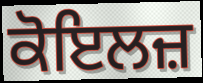
ਕੋਇਲਜ਼